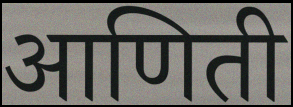
आणिती